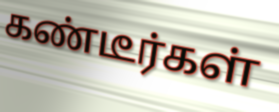
கண்டீர்கள்